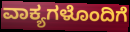
ವಾಕ್ಯಗಳೊಂದಿಗೆ